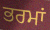
ਭਰਮਾਂ